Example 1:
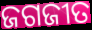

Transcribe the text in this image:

ଜଗଜୀତ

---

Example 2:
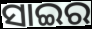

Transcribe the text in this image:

ସାଇର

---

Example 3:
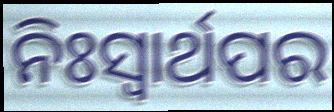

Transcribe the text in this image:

ନିଃସ୍ୱାର୍ଥପର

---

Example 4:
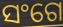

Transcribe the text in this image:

ସଂଗେ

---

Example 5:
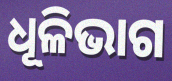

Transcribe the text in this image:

ଧୂଳିଭାଗ